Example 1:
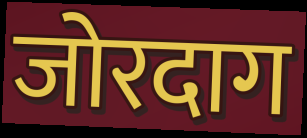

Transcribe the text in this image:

जोरदाग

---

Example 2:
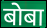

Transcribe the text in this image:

बोबा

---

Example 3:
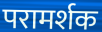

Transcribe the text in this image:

परामर्शक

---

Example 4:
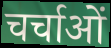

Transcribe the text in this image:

चर्चाओं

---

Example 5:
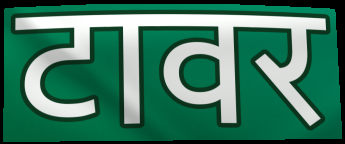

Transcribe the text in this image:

टावर